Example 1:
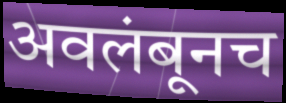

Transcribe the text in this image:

अवलंबूनच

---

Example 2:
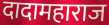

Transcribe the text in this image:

दादामहाराज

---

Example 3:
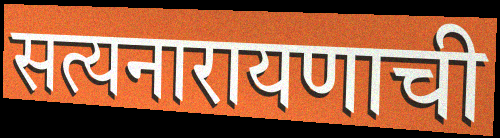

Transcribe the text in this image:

सत्यनारायणाची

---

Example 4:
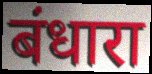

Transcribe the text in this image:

बंधारा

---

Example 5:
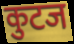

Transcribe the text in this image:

कुटज